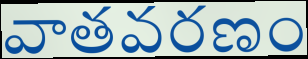
వాతవరణం